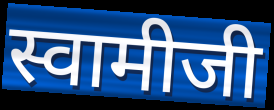
स्वामीजी